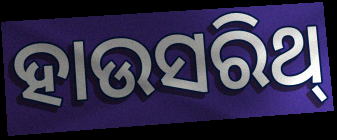
ହାଉସରିଥ୍